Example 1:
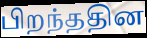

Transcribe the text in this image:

பிறந்ததின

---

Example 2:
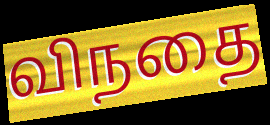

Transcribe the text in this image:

விநதை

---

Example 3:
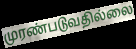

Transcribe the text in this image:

முரண்படுவதில்லை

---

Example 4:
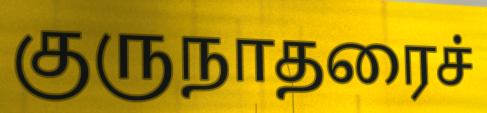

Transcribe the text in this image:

குருநாதரைச்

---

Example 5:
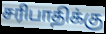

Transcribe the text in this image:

சரிபாதிக்கு